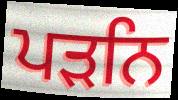
ਪੜਨਿ